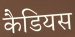
कैडियस